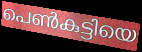
പെൺകുട്ടിയെ